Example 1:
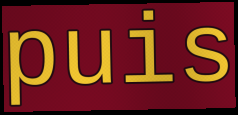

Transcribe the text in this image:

puis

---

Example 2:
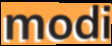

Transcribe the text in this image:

modi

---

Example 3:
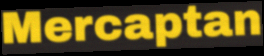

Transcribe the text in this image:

Mercaptan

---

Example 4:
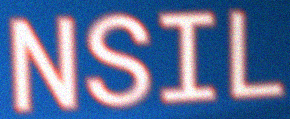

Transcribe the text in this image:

NSIL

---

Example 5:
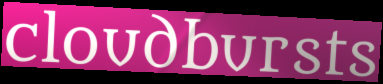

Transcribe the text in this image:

cloudbursts